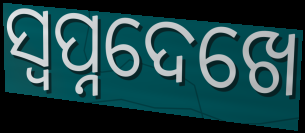
ସ୍ୱପ୍ନଦେଖେ